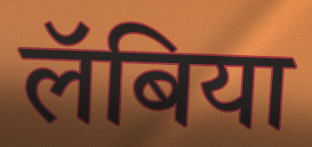
लॅबिया